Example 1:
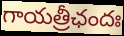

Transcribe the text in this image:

గాయత్రీఛందః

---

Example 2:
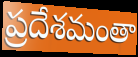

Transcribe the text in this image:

ప్రదేశమంతా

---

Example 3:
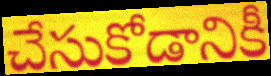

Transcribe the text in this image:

చేసుకోడానికీ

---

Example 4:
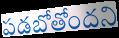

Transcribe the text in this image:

పడబోతోందని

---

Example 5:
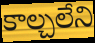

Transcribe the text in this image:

కాల్చలేని